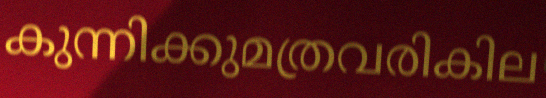
കുന്നിക്കുമത്രവരികില